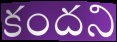
కందని